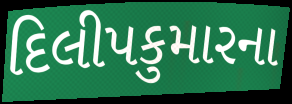
દિલીપકુમારના